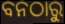
ବନଠାରୁ